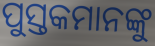
ପୁସ୍ତକମାନଙ୍କୁ